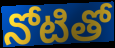
నోటితో